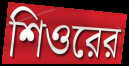
শিওরের